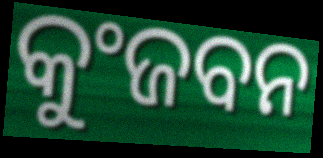
କୁଂଜବନ